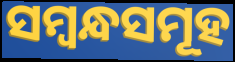
ସମ୍ୱନ୍ଧସମୂହ